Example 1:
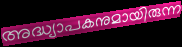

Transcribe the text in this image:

അദ്ധ്യാപകനുമായിരുന്ന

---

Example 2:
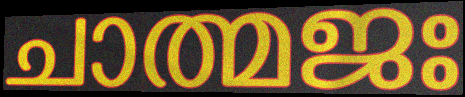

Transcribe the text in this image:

ചാത്മജഃ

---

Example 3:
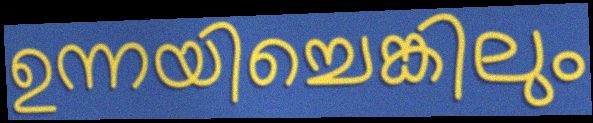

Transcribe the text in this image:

ഉന്നയിച്ചെങ്കിലും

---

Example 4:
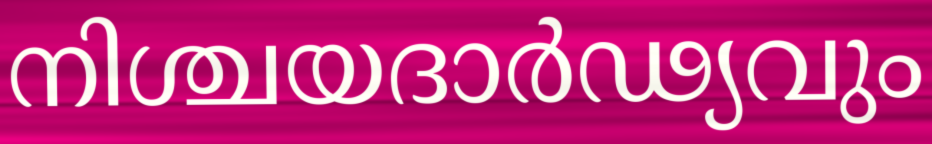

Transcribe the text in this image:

നിശ്ചയദാർഢ്യവും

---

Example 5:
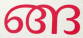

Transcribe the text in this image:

ങ്ങ